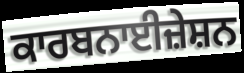
ਕਾਰਬਨਾਈਜ਼ੇਸ਼ਨ